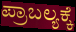
ಪ್ರಾಬಲ್ಯಕ್ಕೆ